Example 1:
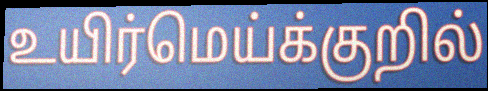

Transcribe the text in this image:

உயிர்மெய்க்குறில்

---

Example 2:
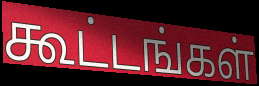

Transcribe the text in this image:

கூட்டங்கள்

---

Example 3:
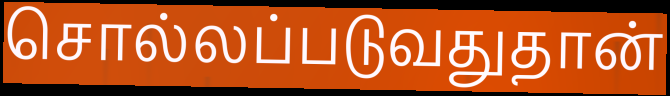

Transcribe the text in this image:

சொல்லப்படுவதுதான்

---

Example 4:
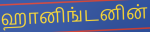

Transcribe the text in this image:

ஹானிங்டனின்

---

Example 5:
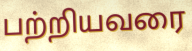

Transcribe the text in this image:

பற்றியவரை